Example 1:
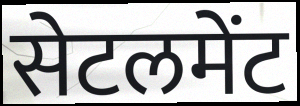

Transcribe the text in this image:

सेटलमेंट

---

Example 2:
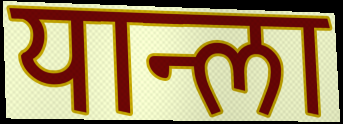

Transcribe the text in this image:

यान्ला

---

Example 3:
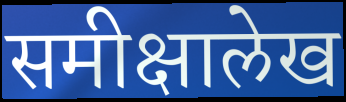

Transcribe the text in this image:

समीक्षालेख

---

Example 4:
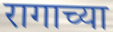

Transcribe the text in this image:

रागाच्या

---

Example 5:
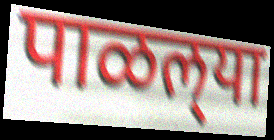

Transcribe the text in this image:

पाळल्या